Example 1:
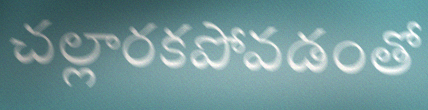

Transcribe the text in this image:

చల్లారకపోవడంతో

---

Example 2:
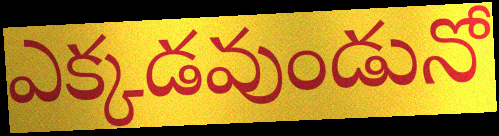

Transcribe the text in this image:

ఎక్కడవుండునో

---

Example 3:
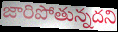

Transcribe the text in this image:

జారిపోతున్నదని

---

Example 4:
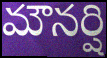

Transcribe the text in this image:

మౌనర్షి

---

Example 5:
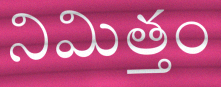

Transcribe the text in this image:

నిమిత్తం